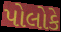
પોલોકે